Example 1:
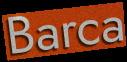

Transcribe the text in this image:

Barca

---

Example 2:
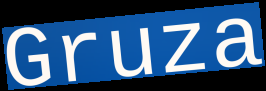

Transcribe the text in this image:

Gruza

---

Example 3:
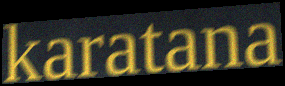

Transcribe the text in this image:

karatana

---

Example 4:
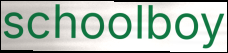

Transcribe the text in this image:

schoolboy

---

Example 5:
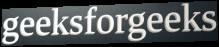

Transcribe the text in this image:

geeksforgeeks